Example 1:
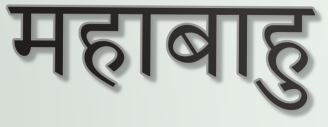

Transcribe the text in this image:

महाबाहु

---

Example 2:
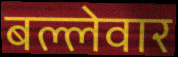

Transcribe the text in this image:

बल्लेवार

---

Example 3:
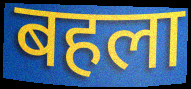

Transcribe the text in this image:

बहला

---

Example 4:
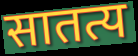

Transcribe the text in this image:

सातत्य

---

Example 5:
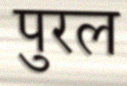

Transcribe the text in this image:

पुरल